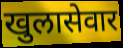
खुलासेवार